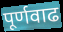
पूर्णवाढ